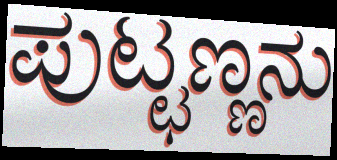
ಪುಟ್ಟಣ್ಣನು